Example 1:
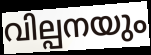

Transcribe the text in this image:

വില്പനയും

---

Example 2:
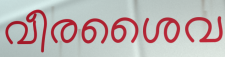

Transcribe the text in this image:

വീരശൈവ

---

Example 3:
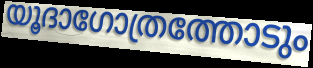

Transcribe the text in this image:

യൂദാഗോത്രത്തോടും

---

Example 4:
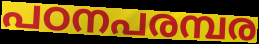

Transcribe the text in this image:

പഠനപരമ്പര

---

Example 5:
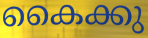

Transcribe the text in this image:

കൈക്കു